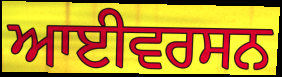
ਆਈਵਰਸਨ